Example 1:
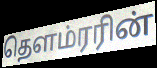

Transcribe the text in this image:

தௌம்ரரின்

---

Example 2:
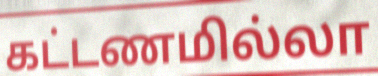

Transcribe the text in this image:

கட்டணமில்லா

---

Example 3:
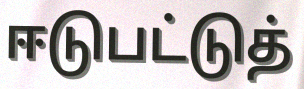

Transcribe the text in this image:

ஈடுபட்டுத்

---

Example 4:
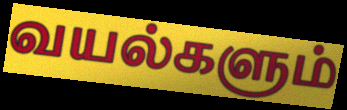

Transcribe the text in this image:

வயல்களும்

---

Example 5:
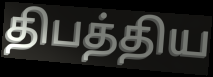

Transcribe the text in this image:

திபத்திய